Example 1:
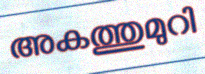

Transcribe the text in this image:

അകത്തുമുറി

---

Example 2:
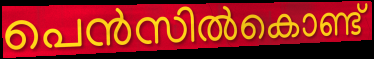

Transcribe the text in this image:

പെൻസിൽകൊണ്ട്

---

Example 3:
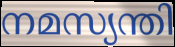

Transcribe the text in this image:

നമസ്യന്തി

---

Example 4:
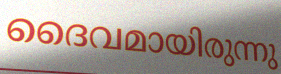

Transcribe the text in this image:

ദൈവമായിരുന്നു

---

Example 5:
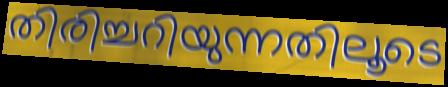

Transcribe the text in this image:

തിരിച്ചറിയുന്നതിലൂടെ